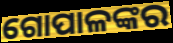
ଗୋପାଳଙ୍କର